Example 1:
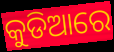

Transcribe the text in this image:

କୁଡିଆରେ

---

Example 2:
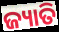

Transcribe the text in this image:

ଜ୍ୟାତି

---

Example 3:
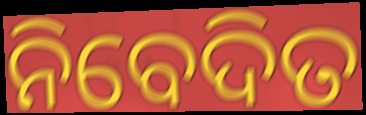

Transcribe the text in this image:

ନିବେଦିତ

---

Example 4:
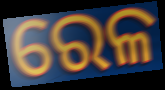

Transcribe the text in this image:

ରେଳ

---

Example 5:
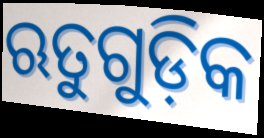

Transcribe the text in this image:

ଋତୁଗୁଡ଼ିକ